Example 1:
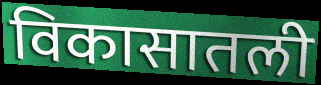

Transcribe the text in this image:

विकासातली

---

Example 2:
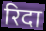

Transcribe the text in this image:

रिदा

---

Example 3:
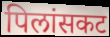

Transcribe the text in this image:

पिलांसकट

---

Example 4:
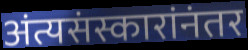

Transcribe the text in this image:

अंत्यसंस्कारांनंतर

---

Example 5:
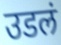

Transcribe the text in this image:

उडलं